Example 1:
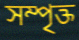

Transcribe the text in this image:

সম্পৃক্ত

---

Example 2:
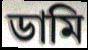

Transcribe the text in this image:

ডামি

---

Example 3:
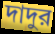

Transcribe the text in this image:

দাদুর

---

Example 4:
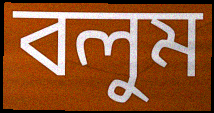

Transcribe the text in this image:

বলুম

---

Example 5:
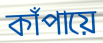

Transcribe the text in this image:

কাঁপায়ে